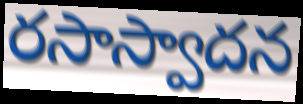
రసాస్వాదన